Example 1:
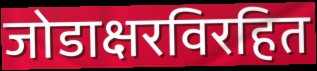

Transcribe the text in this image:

जोडाक्षरविरहित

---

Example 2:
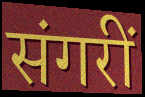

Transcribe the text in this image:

संगरीं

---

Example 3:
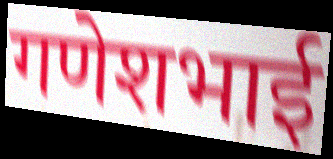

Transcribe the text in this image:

गणेशभाई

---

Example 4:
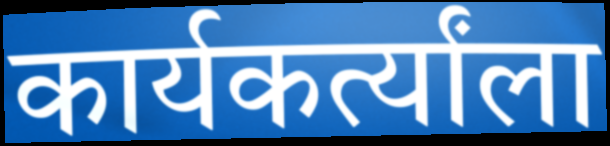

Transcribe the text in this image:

कार्यकर्त्यांला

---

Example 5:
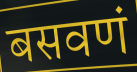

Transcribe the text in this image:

बसवणं